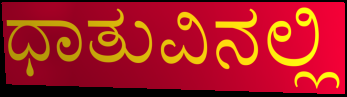
ಧಾತುವಿನಲ್ಲಿ